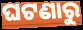
ଘଟଣାରୁ